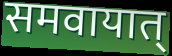
समवायात्